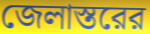
জেলাস্তরের